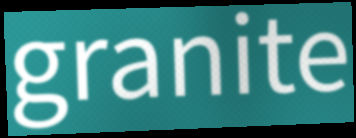
granite